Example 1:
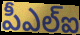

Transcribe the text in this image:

పీఎల్ఐ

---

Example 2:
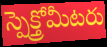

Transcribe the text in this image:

స్పెక్త్రోమీటరు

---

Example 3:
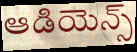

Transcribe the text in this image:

ఆడియెన్స్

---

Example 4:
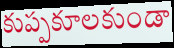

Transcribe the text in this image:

కుప్పకూలకుండా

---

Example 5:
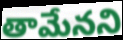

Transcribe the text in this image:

తామేనని